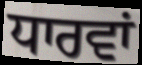
ਧਾਰਵਾਂ